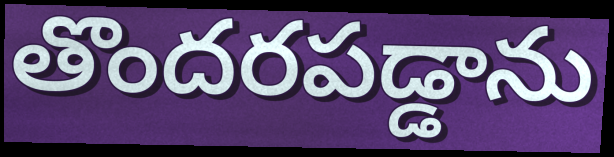
తొందరపడ్డాను